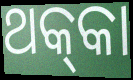
ଥକ୍‌କା